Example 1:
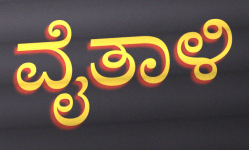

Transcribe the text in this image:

ವೈತಾಳಿ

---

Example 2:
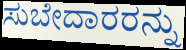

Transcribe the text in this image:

ಸುಬೇದಾರರನ್ನು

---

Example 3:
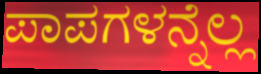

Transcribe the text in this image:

ಪಾಪಗಳನ್ನೆಲ್ಲ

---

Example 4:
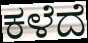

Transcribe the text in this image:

ಕಳೆದೆ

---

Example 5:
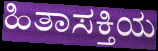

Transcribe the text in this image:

ಹಿತಾಸಕ್ತಿಯ